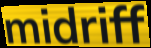
midriff